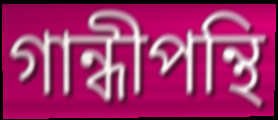
গান্ধীপন্থি